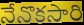
నేనొకసారి